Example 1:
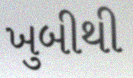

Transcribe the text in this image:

ખુબીથી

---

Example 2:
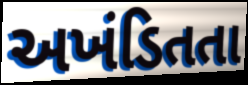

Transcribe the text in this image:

અખંડિતતા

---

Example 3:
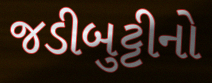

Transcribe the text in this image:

જડીબુટ્ટીનો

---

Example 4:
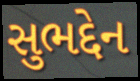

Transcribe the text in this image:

સુભદ્દેન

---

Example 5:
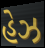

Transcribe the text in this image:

હેઝ